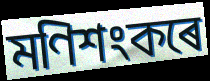
মণিশংকৰে